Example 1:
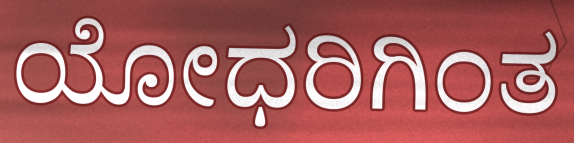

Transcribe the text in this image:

ಯೋಧರಿಗಿಂತ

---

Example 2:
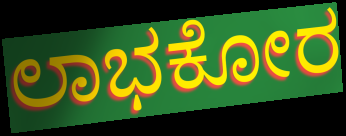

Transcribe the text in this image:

ಲಾಭಕೋರ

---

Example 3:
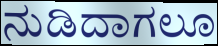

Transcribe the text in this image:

ನುಡಿದಾಗಲೂ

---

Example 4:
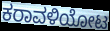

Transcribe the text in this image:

ಕರಾವಳಿಯೋಟ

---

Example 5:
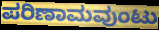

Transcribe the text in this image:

ಪರಿಣಾಮವುಂಟು